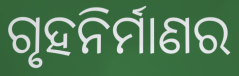
ଗୃହନିର୍ମାଣର